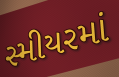
સ્મીયરમાં